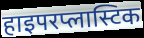
हाइपरप्लास्टिक